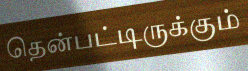
தென்பட்டிருக்கும்